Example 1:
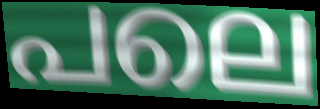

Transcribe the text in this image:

പലെ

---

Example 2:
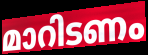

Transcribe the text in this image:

മാറിടണം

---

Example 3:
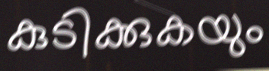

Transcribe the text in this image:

കുടിക്കുകയും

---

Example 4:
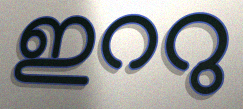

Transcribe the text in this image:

ഇററു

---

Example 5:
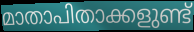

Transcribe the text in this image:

മാതാപിതാക്കളുണ്ട്